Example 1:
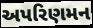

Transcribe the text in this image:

અપરિણમન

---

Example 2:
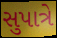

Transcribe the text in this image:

સુપાત્રે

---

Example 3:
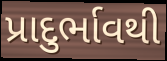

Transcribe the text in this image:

પ્રાદુર્ભાવથી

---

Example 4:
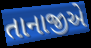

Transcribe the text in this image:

તાનાજીએ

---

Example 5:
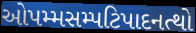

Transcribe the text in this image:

ઓપમ્મસમ્પટિપાદનત્થો